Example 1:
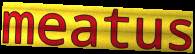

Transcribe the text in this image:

meatus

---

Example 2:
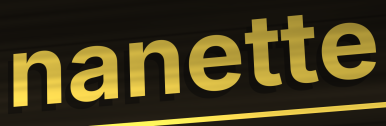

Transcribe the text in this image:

nanette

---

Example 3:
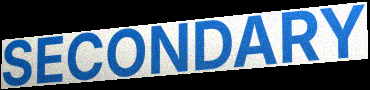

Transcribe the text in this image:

SECONDARY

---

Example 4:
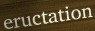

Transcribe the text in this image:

eructation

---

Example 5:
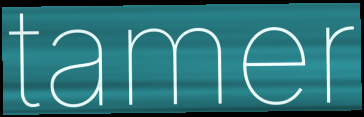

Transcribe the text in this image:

tamer